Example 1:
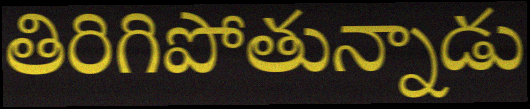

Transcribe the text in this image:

తిరిగిపోతున్నాడు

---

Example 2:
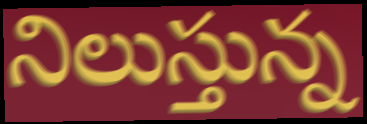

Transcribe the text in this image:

నిలుస్తున్న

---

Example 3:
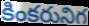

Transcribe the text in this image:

కింకరునిగ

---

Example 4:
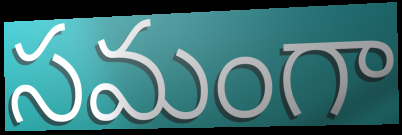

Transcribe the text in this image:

సమంగా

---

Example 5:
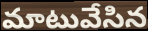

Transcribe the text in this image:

మాటువేసిన